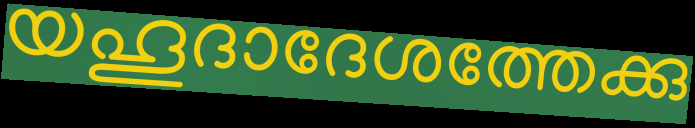
യഹൂദാദേശത്തേക്കു